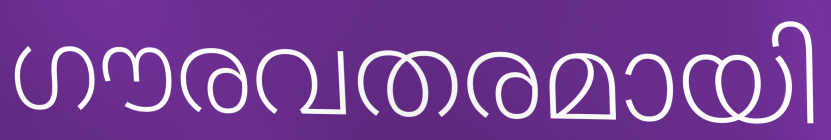
ഗൗരവതരമായി